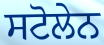
ਸਟੋਲੇਨ